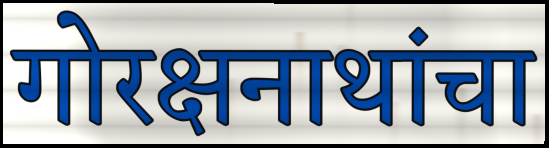
गोरक्षनाथांचा